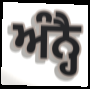
ਅੰਨ੍ਹੈ